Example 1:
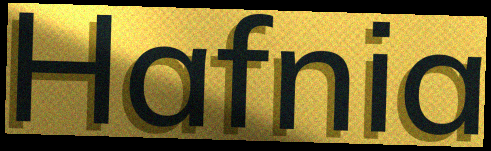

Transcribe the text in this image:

Hafnia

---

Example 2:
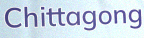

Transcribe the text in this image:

Chittagong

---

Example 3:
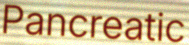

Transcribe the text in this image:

Pancreatic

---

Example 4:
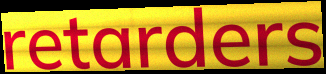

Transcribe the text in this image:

retarders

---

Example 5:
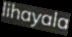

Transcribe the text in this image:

lihayala